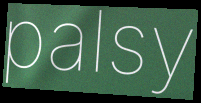
palsy